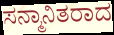
ಸನ್ಮಾನಿತರಾದ